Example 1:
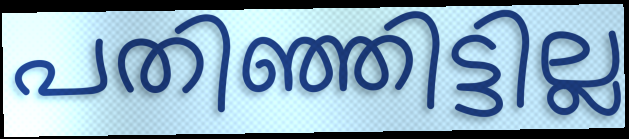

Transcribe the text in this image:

പതിഞ്ഞിട്ടില്ല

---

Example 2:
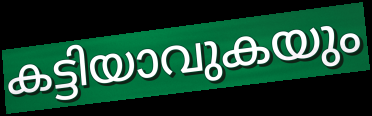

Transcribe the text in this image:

കട്ടിയാവുകയും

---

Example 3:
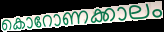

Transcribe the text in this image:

കൊറോണക്കാലം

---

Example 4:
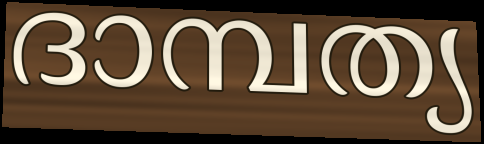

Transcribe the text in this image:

ദാമ്പത്യ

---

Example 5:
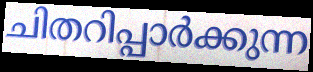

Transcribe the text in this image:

ചിതറിപ്പാർക്കുന്ന